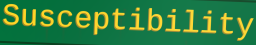
Susceptibility